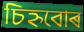
চিহ্নবোৰ